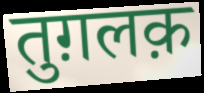
तुग़लक़